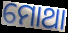
ମୋଥା